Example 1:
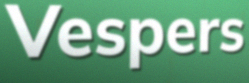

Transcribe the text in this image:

Vespers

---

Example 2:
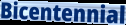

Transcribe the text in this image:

Bicentennial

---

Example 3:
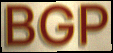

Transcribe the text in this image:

BGP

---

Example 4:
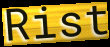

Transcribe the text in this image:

Rist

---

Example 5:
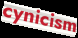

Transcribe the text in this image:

cynicism